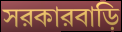
সরকারবাড়ি